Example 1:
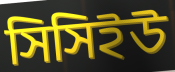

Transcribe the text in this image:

সিসিইউ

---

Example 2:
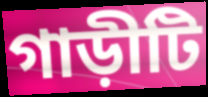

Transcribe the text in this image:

গাড়ীটি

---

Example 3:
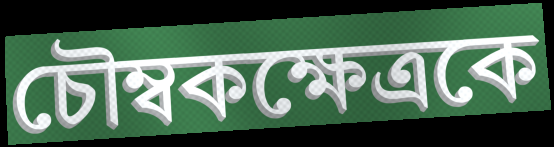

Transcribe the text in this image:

চৌম্বকক্ষেত্রকে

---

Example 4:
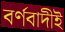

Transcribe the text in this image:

বর্ণবাদীই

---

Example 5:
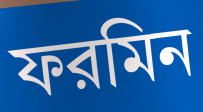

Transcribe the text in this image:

ফরমিন